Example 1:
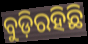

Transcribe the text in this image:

ବୁଡ଼ିରହିଛି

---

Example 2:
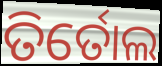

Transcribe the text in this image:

ତିର୍ତୋଲ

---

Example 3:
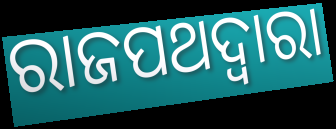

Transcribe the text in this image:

ରାଜପଥଦ୍ୱାରା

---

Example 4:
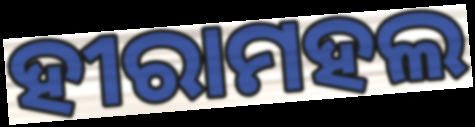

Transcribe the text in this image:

ହୀରାମହଲ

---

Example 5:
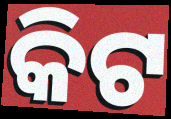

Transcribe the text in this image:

କିଟ